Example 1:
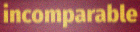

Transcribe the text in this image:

incomparable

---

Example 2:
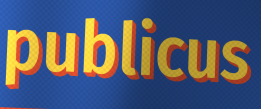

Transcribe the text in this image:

publicus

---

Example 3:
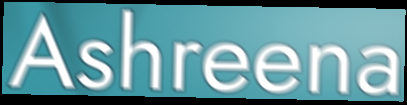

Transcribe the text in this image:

Ashreena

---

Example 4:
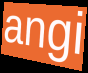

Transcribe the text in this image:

angi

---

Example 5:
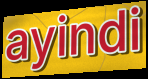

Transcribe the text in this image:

ayindi